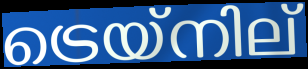
ട്രെയ്നില്